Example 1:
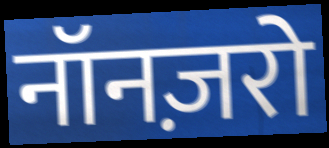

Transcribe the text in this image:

नॉनज़रो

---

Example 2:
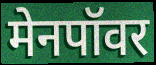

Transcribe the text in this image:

मेनपॉवर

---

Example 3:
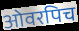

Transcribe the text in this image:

ओवरपिच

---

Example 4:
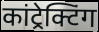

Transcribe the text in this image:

कांट्रेक्टिंग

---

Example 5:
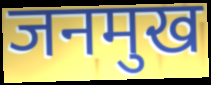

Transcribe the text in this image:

जनमुख